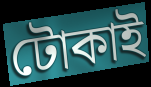
টোকাই